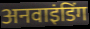
अनवाइंडिंग